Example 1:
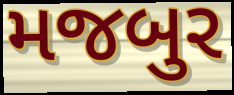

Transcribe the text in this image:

મજબુર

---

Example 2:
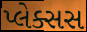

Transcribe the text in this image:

પ્લેક્સસ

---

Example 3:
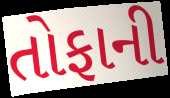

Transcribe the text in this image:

તોફાની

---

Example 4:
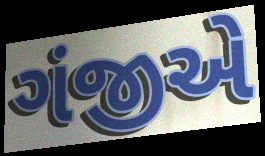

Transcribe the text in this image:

ગંજીએ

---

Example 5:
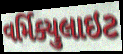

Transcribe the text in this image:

વર્મિક્યુલાઇટ